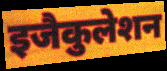
इजैकुलेशन